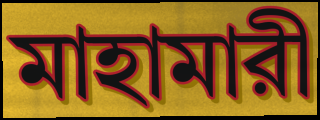
মাহামারী